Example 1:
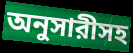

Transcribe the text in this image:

অনুসারীসহ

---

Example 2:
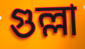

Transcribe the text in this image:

গুল্লা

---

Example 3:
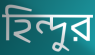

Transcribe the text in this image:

হিন্দুর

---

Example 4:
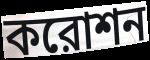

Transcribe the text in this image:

করোশন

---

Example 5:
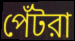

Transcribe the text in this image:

পেঁটরা